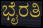
ಭೈರತಿ